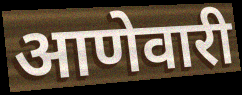
आणेवारी